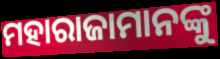
ମହାରାଜାମାନଙ୍କୁ